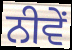
ਨੀਵੇਂ